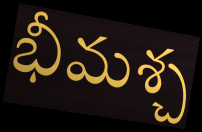
భీమశ్చ